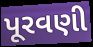
પૂરવણી